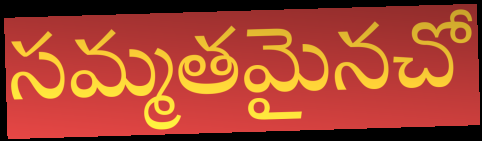
సమ్మతమైనచో